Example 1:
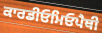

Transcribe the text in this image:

ਕਾਰਡੀਓਮਿਓਪੈਥੀ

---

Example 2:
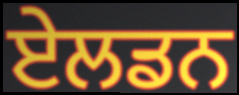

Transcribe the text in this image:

ਏਲਡਨ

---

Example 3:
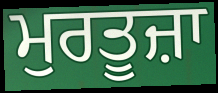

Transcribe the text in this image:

ਮੁਰਤੂਜ਼ਾ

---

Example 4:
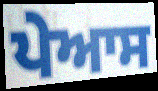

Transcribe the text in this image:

ਪੇਆਸ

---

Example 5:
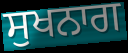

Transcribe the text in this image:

ਸੁਖਨਾਗ